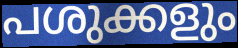
പശുക്കളും